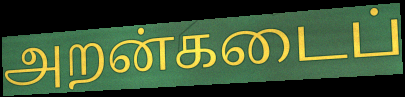
அறன்கடைப்